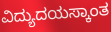
ವಿದ್ಯುದಯಸ್ಕಾಂತ